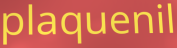
plaquenil